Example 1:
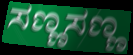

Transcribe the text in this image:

ಸಣ್ಣಸಣ್ಣ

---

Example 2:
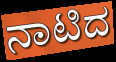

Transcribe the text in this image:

ನಾಟಿದ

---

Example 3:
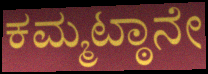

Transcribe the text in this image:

ಕಮ್ಮಟ್ಠಾನೇ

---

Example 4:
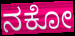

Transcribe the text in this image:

ನಕೋ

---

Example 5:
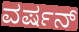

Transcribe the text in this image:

ವರ್ಷನ್